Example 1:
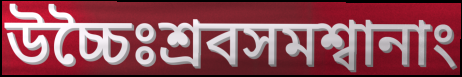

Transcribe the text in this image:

উচ্চৈঃশ্রবসমশ্বানাং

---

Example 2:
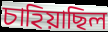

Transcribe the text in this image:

চাহিয়াছিল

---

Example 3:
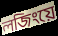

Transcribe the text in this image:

লজিংয়ে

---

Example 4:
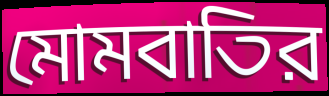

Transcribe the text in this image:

মোমবাতির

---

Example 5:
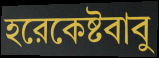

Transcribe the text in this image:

হরেকেষ্টবাবু